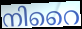
നിറൈ